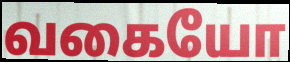
வகையோ